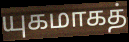
யுகமாகத்